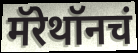
मॅरेथॉनचं